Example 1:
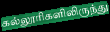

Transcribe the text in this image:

கல்லூரிகளிலிருந்து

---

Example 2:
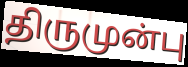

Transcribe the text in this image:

திருமுன்பு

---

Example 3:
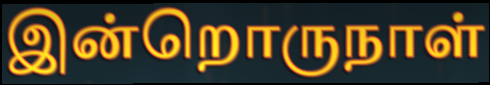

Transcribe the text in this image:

இன்றொருநாள்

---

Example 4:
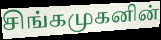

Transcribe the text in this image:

சிங்கமுகனின்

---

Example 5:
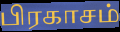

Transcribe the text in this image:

பிரகாசம்